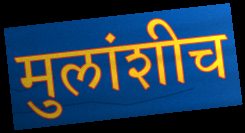
मुलांशीच